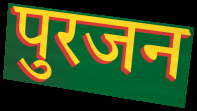
पुरजन